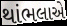
થાંભલાએ